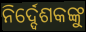
ନିର୍ଦ୍ଦେଶକଙ୍କୁ